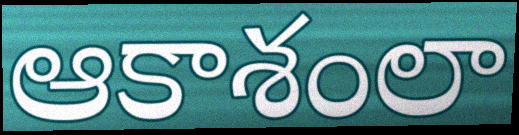
ఆకాశంలా